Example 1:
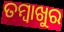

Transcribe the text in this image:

ତମ୍ବାଖୁର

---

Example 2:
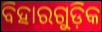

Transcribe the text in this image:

ବିହାରଗୁଡ଼ିକ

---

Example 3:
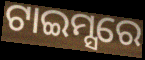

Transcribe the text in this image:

ଟାଇମ୍ସରେ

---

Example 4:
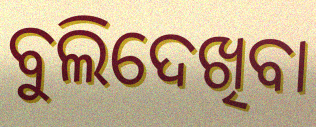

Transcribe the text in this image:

ବୁଲିଦେଖିବା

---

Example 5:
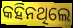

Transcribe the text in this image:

କହିନଥିଲେ